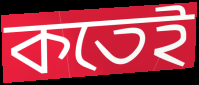
কতেই